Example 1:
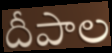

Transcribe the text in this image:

దీపాల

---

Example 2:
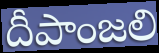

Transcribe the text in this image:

దీపాంజలి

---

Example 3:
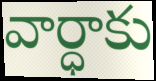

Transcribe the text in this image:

వార్ధాకు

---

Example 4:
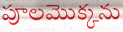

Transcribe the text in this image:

పూలమొక్కను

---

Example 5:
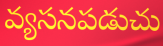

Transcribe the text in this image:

వ్యసనపడుచు